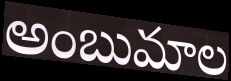
అంబుమాల